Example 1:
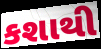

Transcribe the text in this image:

કશાથી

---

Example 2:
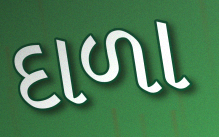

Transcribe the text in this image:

દાળા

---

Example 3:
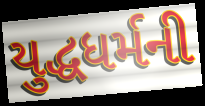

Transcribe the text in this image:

યુદ્ધધર્મની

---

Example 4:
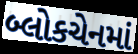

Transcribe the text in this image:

બ્લોકચેનમાં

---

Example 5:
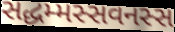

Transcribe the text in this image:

સદ્ધમ્મસ્સવનસ્સ